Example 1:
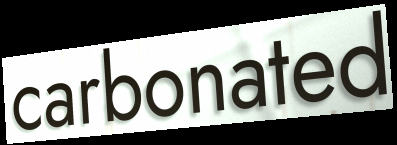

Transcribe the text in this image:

carbonated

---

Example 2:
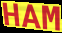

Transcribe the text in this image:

HAM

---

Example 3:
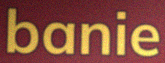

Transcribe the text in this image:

banie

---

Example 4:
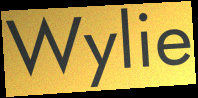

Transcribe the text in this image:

Wylie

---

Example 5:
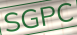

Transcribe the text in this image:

SGPC